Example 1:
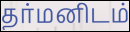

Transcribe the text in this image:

தர்மனிடம்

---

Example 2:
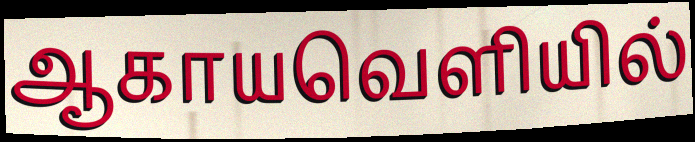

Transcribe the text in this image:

ஆகாயவெளியில்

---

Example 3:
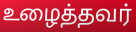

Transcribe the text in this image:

உழைத்தவர்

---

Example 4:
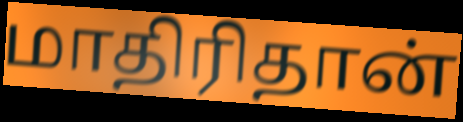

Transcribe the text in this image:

மாதிரிதான்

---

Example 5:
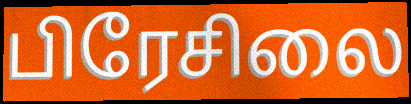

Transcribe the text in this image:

பிரேசிலை